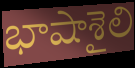
భాషాశైలి